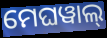
ମେଘୱାଲ୍